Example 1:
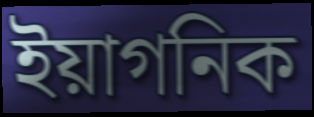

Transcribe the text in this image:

ইয়াগনিক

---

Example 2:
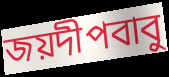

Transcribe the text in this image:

জয়দীপবাবু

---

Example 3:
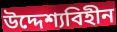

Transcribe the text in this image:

উদ্দেশ্যবিহীন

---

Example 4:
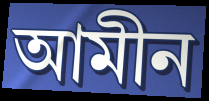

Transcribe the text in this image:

আমীন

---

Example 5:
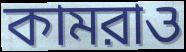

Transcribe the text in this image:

কামরাও